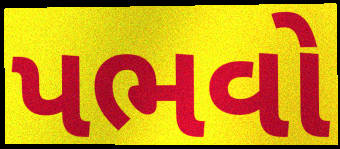
પભવો